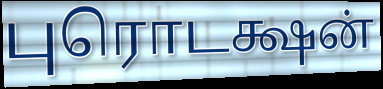
புரொடக்ஷன்